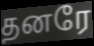
தனரே